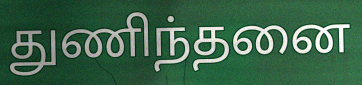
துணிந்தனை